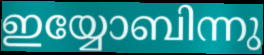
ഇയ്യോബിന്നു